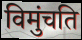
विमुंचति